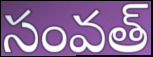
సంవత్